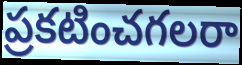
ప్రకటించగలరా